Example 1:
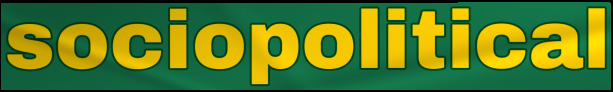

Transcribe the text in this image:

sociopolitical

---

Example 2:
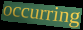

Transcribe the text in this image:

occurring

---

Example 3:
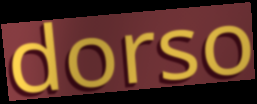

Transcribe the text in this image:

dorso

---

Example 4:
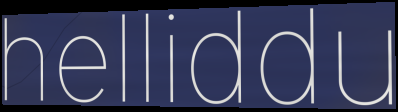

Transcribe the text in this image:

helliddu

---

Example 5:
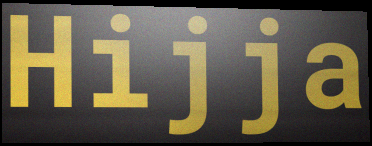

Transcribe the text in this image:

Hijja